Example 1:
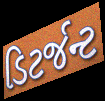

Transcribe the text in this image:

ડિટર્જન્ટ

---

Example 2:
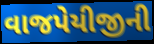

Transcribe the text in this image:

વાજપેયીજીની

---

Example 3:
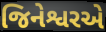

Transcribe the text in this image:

જિનેશ્વરએ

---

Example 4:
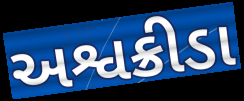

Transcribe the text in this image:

અશ્વક્રીડા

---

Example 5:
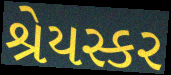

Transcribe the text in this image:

શ્રેયસ્કર